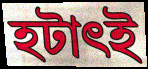
হটাৎই